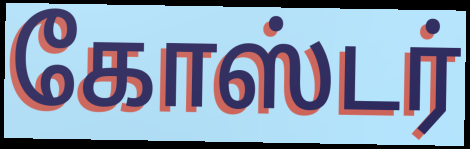
கோஸ்டர்